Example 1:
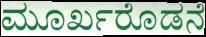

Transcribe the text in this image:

ಮೂರ್ಖರೊಡನೆ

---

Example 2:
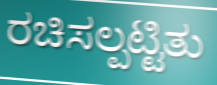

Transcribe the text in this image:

ರಚಿಸಲ್ಪಟ್ಟಿತು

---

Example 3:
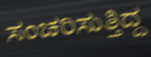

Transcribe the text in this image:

ಸಂಚರಿಸುತ್ತಿದ್ದ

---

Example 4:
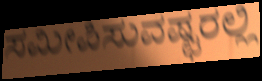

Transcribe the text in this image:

ಸಮೀಪಿಸುವಷ್ಟರಲ್ಲಿ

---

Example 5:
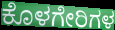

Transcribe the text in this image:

ಕೊಳಗೇರಿಗಳ